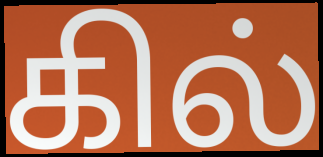
கில்